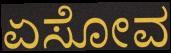
ಏಸೋವ